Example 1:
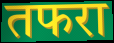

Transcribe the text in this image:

तफरा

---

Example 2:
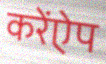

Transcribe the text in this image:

करेंऐप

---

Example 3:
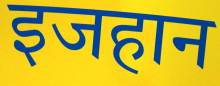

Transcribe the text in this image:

इजहान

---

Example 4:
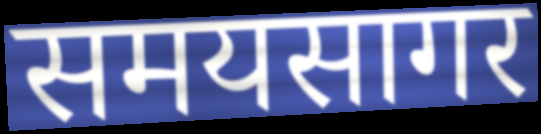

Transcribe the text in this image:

समयसागर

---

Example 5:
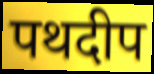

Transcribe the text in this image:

पथदीप